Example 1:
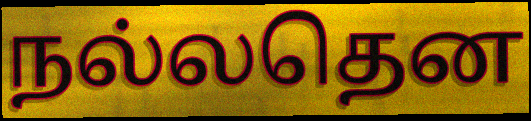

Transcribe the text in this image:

நல்லதென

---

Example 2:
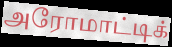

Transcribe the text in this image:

அரோமாட்டிக்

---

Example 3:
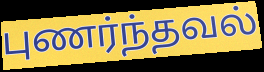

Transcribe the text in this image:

புணர்ந்தவல்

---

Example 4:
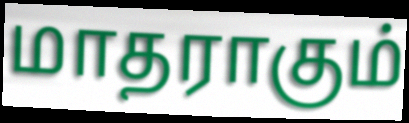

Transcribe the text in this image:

மாதராகும்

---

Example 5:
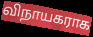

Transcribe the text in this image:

விநாயகராக